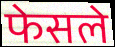
फेसले